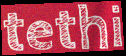
tethi